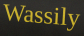
Wassily